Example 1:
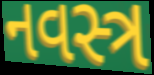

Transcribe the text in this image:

નવસ્ત્ર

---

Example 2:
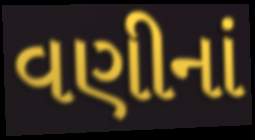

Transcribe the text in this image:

વણીનાં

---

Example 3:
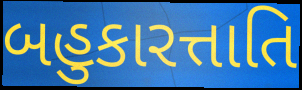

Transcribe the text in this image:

બહુકારત્તાતિ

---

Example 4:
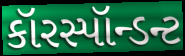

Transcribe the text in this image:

કૉરસ્પૉન્ડન્ટ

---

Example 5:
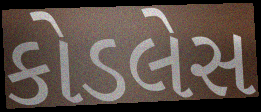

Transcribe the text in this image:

કોડલેસ